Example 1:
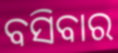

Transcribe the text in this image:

ବସିବାର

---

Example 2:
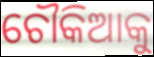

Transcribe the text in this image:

ଚୌକିଆକୁ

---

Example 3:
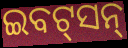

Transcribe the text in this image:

ଇବଟ୍‌ସନ୍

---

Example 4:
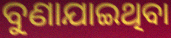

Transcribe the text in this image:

ବୁଣାଯାଇଥିବା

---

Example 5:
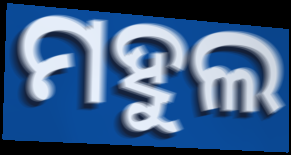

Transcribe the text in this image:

ମହୁଲ